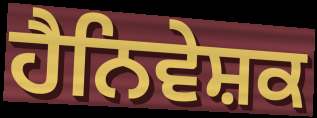
ਹੈਨਿਵੇਸ਼ਕ